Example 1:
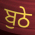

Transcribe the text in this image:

ਬੁਠੇ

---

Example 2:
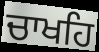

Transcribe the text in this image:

ਚਾਖਹਿ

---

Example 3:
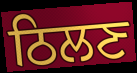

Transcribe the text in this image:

ਠਿਲਣ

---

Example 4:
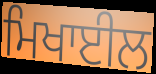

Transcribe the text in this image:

ਮਿਖਾਈਲ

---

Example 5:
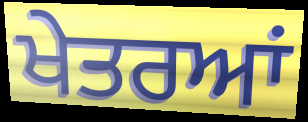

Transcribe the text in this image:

ਖੇਤਰਆਂ